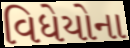
વિધેયોના